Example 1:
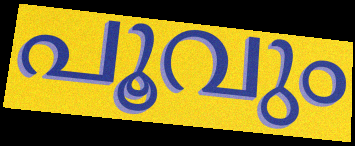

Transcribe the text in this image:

പൂവും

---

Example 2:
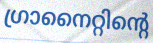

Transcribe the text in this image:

ഗ്രാനൈറ്റിന്റെ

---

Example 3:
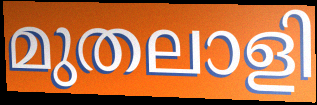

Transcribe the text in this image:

മുതലാളി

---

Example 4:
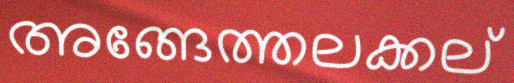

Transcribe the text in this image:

അങ്ങേത്തലക്കല്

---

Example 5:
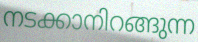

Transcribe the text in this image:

നടക്കാനിറങ്ങുന്ന